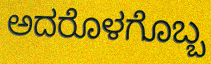
ಅದರೊಳಗೊಬ್ಬ